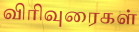
விரிவுரைகள்